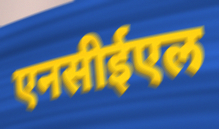
एनसीईएल